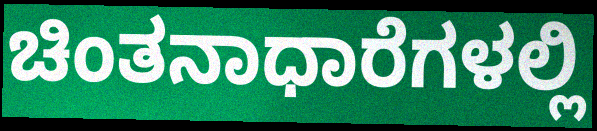
ಚಿಂತನಾಧಾರೆಗಳಲ್ಲಿ